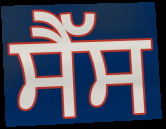
ਸੈੱਸ